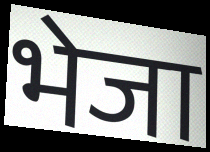
भेजा